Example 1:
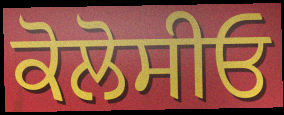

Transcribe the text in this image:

ਕੋਲੋਸੀਓ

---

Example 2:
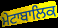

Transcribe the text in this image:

ਮੇਟਾਬਾਲਿਕ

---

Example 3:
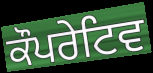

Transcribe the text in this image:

ਕੌਪਰੇਟਿਵ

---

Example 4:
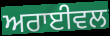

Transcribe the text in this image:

ਅਰਾਈਵਲ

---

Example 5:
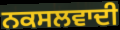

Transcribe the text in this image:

ਨਕਸਲਵਾਦੀ